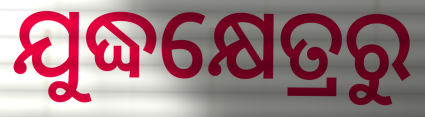
ଯୁଦ୍ଧକ୍ଷେତ୍ରରୁ